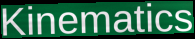
Kinematics